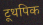
टूथपिक